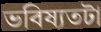
ভবিষ্যতটা